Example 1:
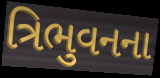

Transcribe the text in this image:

ત્રિભુવનના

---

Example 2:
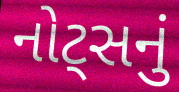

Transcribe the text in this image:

નોટ્સનું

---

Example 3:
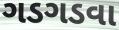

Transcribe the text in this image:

ગડગડવા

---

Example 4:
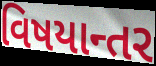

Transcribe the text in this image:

વિષયાન્તર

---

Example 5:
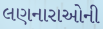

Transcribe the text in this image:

લણનારાઓની